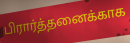
பிரார்த்தனைக்காக